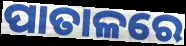
ପାତାଳରେ